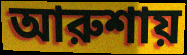
আরুশায়